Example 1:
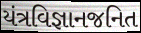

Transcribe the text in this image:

યંત્રવિજ્ઞાનજનિત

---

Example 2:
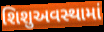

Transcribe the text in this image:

શિશુઅવસ્થામાં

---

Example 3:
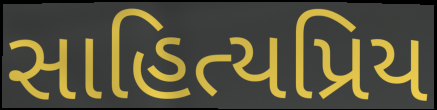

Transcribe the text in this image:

સાહિત્યપ્રિય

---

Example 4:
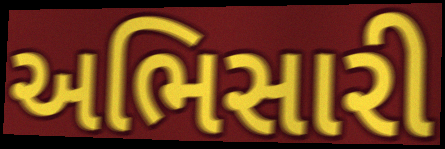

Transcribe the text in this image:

અભિસારી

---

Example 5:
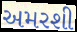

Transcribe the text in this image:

અમરશી